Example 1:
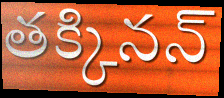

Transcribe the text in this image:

తక్కినన్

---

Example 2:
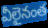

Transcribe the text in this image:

వీలైనంత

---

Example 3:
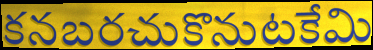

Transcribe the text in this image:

కనబరచుకొనుటకేమి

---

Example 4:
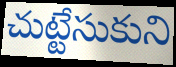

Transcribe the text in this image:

చుట్టేసుకుని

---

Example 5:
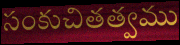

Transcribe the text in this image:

సంకుచితత్వము